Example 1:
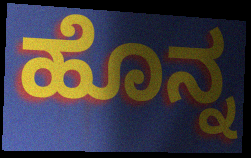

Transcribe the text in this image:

ಹೊನ್ನ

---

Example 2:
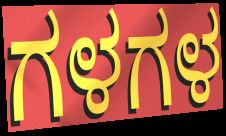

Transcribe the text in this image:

ಗಳಗಳ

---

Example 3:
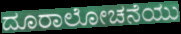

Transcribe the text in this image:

ದೂರಾಲೋಚನೆಯು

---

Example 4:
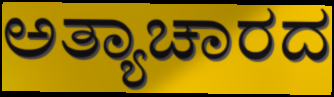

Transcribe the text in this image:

ಅತ್ಯಾಚಾರದ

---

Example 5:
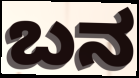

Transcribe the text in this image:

ಬನ